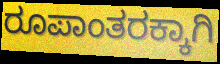
ರೂಪಾಂತರಕ್ಕಾಗಿ